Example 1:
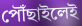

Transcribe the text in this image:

পৌঁছাইলেই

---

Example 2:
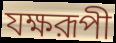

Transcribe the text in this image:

যক্ষরূপী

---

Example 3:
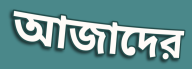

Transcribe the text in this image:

আজাদের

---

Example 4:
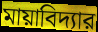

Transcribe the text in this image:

মায়াবিদ্যার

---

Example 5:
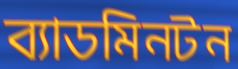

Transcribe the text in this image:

ব্যাডমিনটন